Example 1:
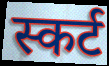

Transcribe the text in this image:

स्कर्ट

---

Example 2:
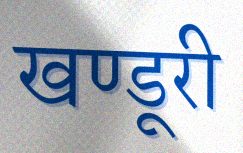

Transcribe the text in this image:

खण्डूरी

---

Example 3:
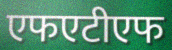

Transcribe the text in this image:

एफएटीएफ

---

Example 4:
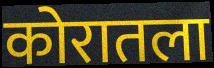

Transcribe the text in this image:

कोरातला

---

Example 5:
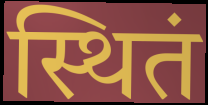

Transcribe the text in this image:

स्थितं